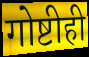
गोष्टीही